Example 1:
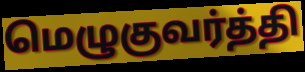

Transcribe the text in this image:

மெழுகுவர்த்தி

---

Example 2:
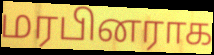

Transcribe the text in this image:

மரபினராக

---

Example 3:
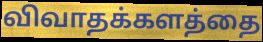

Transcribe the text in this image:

விவாதக்களத்தை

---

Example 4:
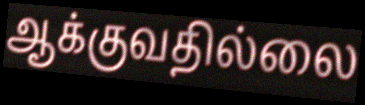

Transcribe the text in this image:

ஆக்குவதில்லை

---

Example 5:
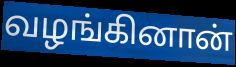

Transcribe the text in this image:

வழங்கினான்